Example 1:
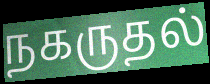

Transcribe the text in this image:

நகருதல்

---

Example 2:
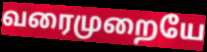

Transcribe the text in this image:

வரைமுறையே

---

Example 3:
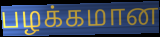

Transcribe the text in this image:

பழக்கமான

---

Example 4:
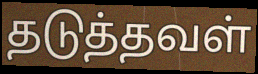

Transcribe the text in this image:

தடுத்தவள்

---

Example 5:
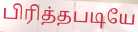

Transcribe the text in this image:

பிரித்தபடியே